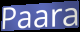
Paara